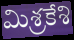
మిశ్రకేశి